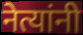
नेत्यांनी